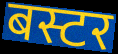
बस्टर